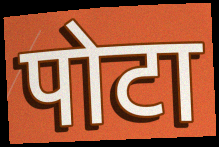
पोटा